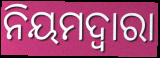
ନିୟମଦ୍ଵାରା